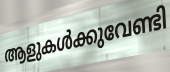
ആളുകൾക്കുവേണ്ടി